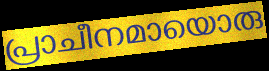
പ്രാചീനമായൊരു